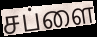
சப்ளை